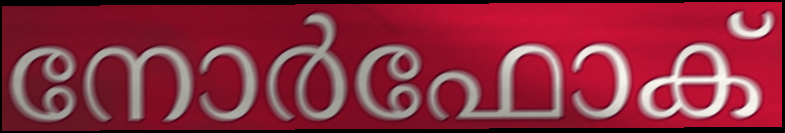
നോർഫോക്